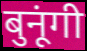
बुनूंगी